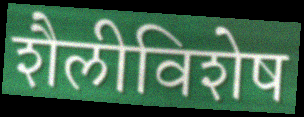
शैलीविशेष